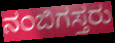
ನಂಬಿಗಸ್ತರು